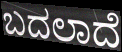
ಬದಲಾದೆ